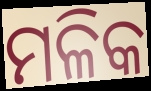
ମଳିକ